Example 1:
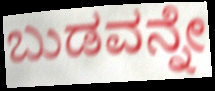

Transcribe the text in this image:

ಬುಡವನ್ನೇ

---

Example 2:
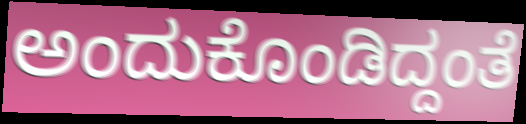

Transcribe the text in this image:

ಅಂದುಕೊಂಡಿದ್ದಂತೆ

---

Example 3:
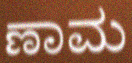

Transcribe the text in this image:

ಣಾಮ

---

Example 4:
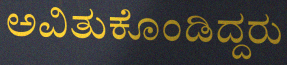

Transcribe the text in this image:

ಅವಿತುಕೊಂಡಿದ್ದರು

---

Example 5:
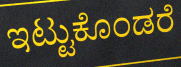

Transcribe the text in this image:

ಇಟ್ಟುಕೊಂಡರೆ